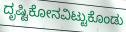
ದೃಷ್ಟಿಕೋನವಿಟ್ಟುಕೊಂಡು